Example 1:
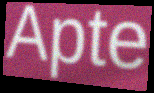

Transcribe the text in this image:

Apte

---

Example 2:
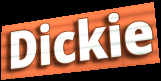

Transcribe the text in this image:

Dickie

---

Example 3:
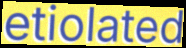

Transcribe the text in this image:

etiolated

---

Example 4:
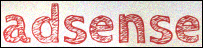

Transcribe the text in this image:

adsense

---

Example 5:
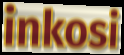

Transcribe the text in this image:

inkosi